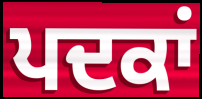
ਪਦਕਾਂ